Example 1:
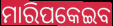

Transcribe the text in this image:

ମାରିପକେଇବ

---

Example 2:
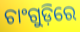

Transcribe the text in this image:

ଚାଂଗୁଡ଼ିରେ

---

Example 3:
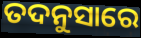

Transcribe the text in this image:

ତଦନୁସାରେ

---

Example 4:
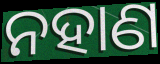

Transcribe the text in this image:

ନହାଣ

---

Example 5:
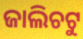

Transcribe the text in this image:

ଜାଲିଚଟୁ